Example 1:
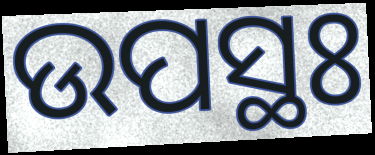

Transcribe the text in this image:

ଉପସ୍ଥଃ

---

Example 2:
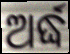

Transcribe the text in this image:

ଅର୍ଦ୍ଧ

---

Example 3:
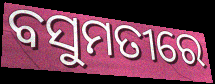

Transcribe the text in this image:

ବସୁମତୀରେ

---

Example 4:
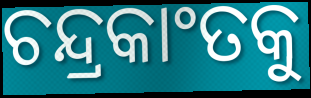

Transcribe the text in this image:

ଚନ୍ଦ୍ରକାଂତକୁ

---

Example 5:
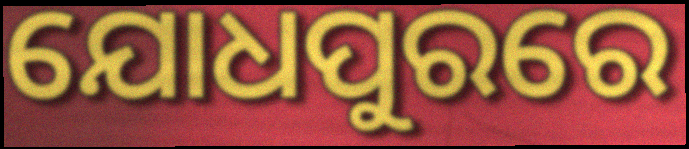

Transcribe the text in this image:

ଯୋଧପୁରରେ